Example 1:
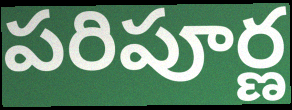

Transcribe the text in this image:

పరిపూర్ణ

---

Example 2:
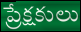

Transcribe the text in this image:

ప్రేక్షకులు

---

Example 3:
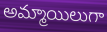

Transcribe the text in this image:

అమ్మాయిలుగా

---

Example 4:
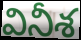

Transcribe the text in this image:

వినీశ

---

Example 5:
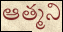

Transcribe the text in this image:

ఆత్మని